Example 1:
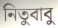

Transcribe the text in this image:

নিতুবাবু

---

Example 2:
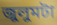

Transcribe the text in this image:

জুলুমটা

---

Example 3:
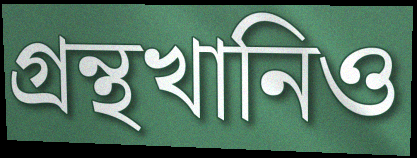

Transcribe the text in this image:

গ্রন্থখানিও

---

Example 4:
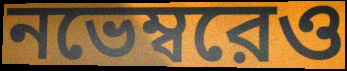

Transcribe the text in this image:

নভেম্বরেও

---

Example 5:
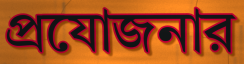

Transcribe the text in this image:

প্রযোজনার